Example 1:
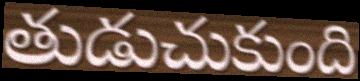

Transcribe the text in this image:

తుడుచుకుంది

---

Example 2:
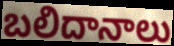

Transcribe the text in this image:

బలిదానాలు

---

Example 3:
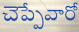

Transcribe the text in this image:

చెప్పేవారో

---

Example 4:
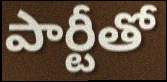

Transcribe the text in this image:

పార్టీతో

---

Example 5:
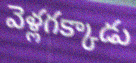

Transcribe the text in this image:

వెళ్లగక్కాడు